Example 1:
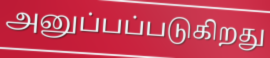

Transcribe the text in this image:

அனுப்பப்படுகிறது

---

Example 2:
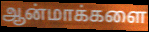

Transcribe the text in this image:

ஆன்மாக்களை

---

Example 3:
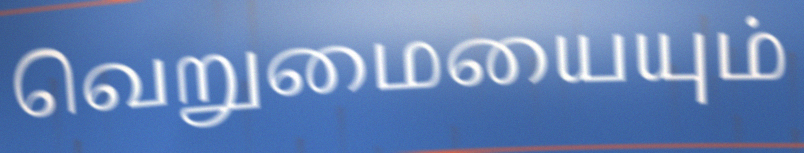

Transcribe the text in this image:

வெறுமையையும்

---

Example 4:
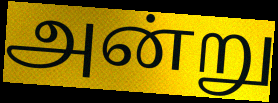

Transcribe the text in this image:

அன்று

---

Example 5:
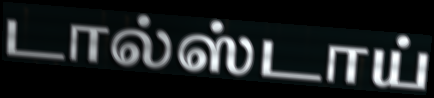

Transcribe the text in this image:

டால்ஸ்டாய்